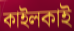
কাইলকাই